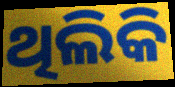
ଥିଲିକି